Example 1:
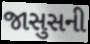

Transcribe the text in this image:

જાસુસની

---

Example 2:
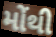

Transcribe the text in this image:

મોંથી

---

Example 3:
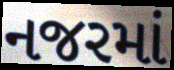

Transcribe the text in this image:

નજરમાં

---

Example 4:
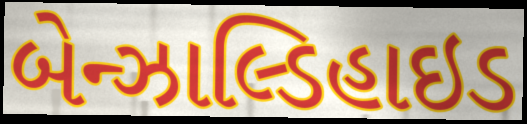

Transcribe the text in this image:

બેન્ઝાલ્ડિહાઇડ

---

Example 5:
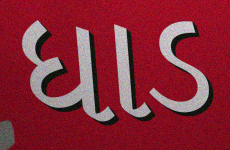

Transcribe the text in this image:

ધાડ